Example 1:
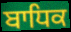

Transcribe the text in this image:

ਬਾਧਿਕ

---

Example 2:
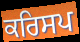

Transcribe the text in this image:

ਕਰਿਸਪ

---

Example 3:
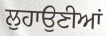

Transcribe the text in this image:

ਲੁਹਾਉਣੀਆਂ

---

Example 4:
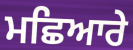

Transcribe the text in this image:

ਮਛਿਆਰੇ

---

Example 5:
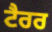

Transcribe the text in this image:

ਟੈਰਰ